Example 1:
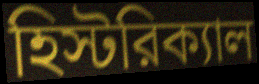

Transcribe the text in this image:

হিস্টরিক্যাল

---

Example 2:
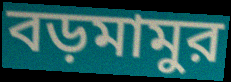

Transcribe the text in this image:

বড়মামুর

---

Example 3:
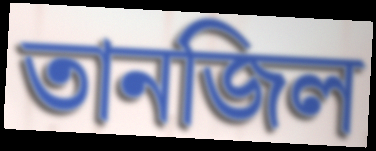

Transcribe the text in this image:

তানজিল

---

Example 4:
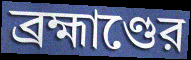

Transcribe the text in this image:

ব্রহ্মাণ্ডের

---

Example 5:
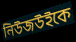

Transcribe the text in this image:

নিউজউইকে